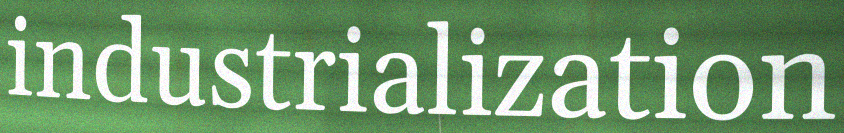
industrialization